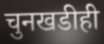
चुनखडीही